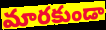
మారకుండా